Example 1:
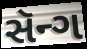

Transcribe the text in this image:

સૅન્ગ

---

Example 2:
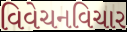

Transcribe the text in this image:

વિવેચનવિચાર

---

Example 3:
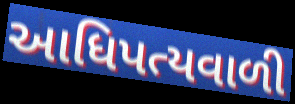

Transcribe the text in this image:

આધિપત્યવાળી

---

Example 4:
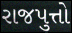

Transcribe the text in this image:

રાજપુત્તો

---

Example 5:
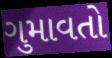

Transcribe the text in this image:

ગુમાવતો